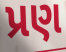
પ્રણ